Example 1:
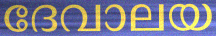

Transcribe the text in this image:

ദേവാലയ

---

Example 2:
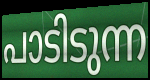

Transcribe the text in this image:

പാടിടുന്ന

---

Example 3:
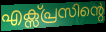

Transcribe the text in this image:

എക്സ്പ്രസിന്റെ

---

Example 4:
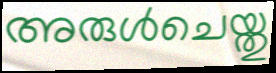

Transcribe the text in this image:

അരുൾചെയ്തു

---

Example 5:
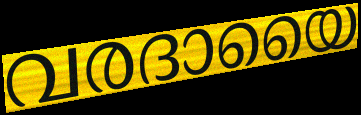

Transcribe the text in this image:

വരദായൈ